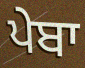
ਪੇਬਾ